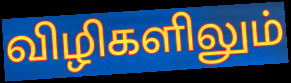
விழிகளிலும்